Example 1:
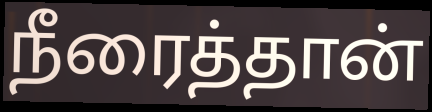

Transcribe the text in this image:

நீரைத்தான்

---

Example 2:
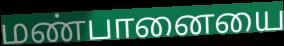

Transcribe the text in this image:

மண்பானையை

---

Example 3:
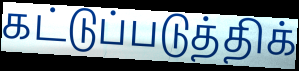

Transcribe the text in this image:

கட்டுப்படுத்திக்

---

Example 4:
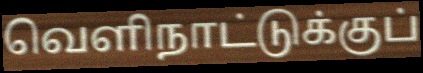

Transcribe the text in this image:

வெளிநாட்டுக்குப்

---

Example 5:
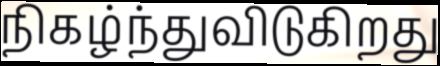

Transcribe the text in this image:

நிகழ்ந்துவிடுகிறது